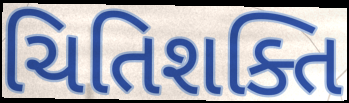
ચિતિશક્તિ